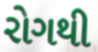
રોગથી